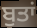
ਬੁਤਾਂ